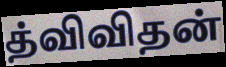
த்விவிதன்